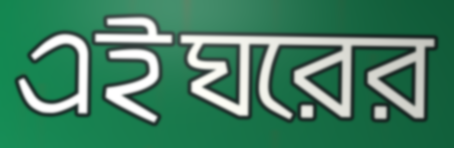
এইঘরের